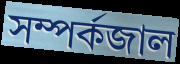
সম্পর্কজাল